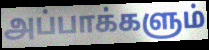
அப்பாக்களும்